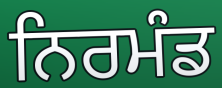
ਨਿਰਮੰਡ